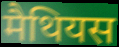
मैथियस